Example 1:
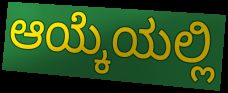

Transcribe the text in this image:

ಆಯ್ಕೆಯಲ್ಲಿ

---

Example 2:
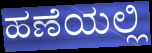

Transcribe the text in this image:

ಹಣೆಯಲ್ಲಿ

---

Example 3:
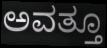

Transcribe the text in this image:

ಅವತ್ತೂ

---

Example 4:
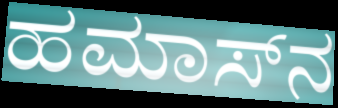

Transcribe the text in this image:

ಹಮಾಸ್‌ನ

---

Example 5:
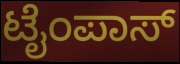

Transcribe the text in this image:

ಟೈಂಪಾಸ್